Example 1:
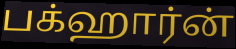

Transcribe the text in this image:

பக்ஹார்ன்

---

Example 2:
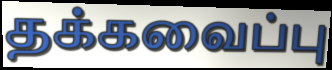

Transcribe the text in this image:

தக்கவைப்பு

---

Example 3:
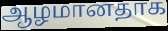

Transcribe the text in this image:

ஆழமானதாக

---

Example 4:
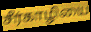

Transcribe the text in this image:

சீர்காழியை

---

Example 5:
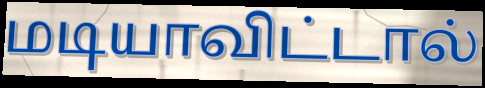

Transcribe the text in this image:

மடியாவிட்டால்